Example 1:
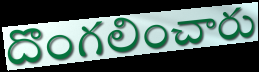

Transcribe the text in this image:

దొంగలించారు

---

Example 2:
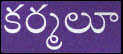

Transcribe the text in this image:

కర్మలూ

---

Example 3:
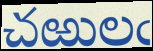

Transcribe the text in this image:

చఱులఁ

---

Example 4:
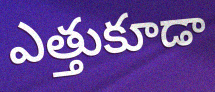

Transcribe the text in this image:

ఎత్తుకూడా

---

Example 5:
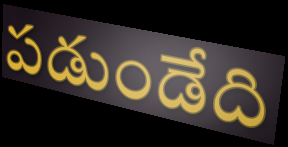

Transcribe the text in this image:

పడుండేది